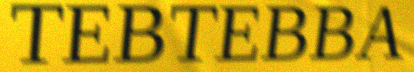
TEBTEBBA